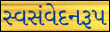
સ્વસંવેદનરૂપ